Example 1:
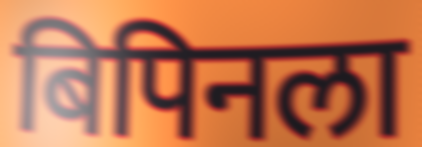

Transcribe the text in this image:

बिपिनला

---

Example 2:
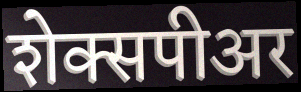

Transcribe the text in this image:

शेक्सपीअर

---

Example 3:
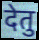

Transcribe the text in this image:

देतु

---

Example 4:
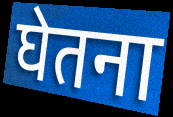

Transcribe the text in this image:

घेतना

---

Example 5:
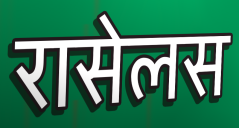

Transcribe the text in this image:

रासेलस